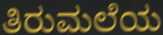
ತಿರುಮಲೆಯ